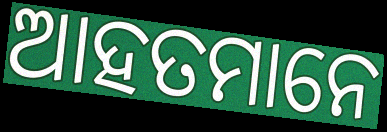
ଆହତମାନେ